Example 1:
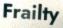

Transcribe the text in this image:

Frailty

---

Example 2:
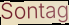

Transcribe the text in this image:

Sontag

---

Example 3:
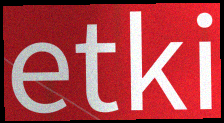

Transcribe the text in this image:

etki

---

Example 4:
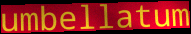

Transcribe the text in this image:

umbellatum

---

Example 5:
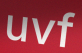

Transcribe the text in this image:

uvf